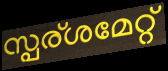
സ്പര്ശമേറ്റ്